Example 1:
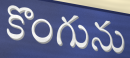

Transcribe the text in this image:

కొంగును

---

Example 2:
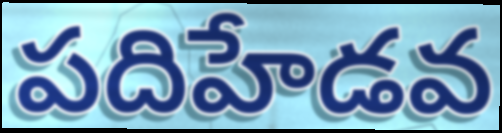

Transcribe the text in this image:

పదిహేడవ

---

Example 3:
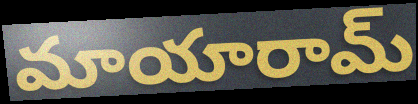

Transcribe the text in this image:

మాయారామ్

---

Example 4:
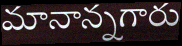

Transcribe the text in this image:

మానాన్నగారు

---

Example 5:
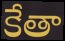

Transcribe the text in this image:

కేతా